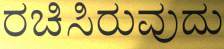
ರಚಿಸಿರುವುದು